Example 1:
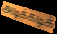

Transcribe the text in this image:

அடிக்கடிக்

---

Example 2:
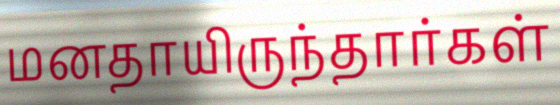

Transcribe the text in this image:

மனதாயிருந்தார்கள்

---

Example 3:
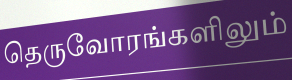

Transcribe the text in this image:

தெருவோரங்களிலும்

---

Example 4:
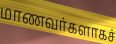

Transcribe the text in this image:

மாணவர்களாகச்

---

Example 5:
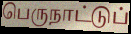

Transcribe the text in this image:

பெருநாட்டுப்